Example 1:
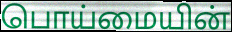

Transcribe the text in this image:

பொய்மையின்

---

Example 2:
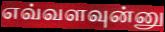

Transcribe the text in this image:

எவ்வளவுன்னு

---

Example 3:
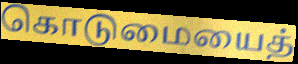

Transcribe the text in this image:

கொடுமையைத்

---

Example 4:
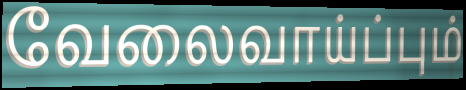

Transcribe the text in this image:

வேலைவாய்ப்பும்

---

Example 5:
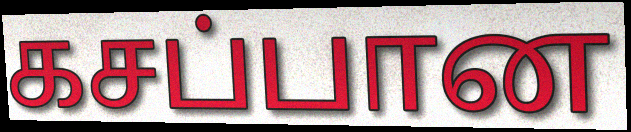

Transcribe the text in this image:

கசப்பான